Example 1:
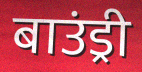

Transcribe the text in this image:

बाउंड्री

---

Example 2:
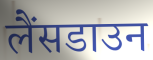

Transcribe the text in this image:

लैंसडाउन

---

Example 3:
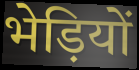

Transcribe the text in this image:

भेड़ियों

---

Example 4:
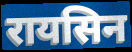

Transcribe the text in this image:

रायसिन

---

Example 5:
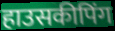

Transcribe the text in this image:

हाउसकीपिंग